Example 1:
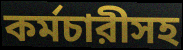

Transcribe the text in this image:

কর্মচারীসহ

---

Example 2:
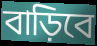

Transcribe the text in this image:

বাড়িবে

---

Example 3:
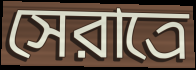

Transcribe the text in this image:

সেরাত্রে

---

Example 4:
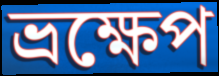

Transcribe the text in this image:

ভ্রক্ষেপ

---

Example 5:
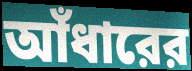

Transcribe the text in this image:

আঁধারের